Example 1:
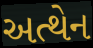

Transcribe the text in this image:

અત્થેન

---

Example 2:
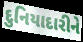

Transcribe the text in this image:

દુનિયાદારીને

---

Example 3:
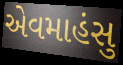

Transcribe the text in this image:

એવમાહંસુ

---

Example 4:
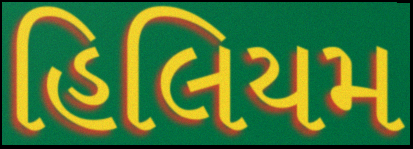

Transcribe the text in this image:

હિલિયમ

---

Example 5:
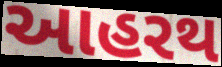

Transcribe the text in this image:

આહરથ